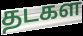
தடகள